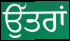
ਉੱਤਰਾਂ